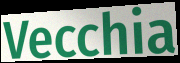
Vecchia